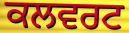
ਕਲਵਰਟ